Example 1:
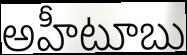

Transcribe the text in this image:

అహీటూబు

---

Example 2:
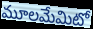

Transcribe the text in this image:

మూలమేమిటో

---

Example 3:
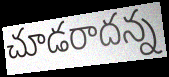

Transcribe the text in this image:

చూడరాదన్న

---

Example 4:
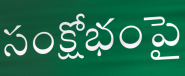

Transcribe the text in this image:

సంక్షోభంపై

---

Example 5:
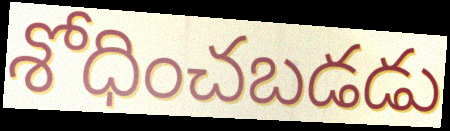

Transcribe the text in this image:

శోధించబడడు